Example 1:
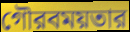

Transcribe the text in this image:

গৌরবময়তার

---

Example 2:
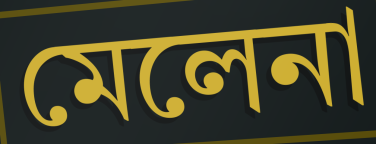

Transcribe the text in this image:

মেলেনা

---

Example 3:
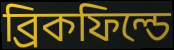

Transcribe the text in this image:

ব্রিকফিল্ডে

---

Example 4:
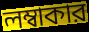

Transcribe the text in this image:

লম্বাকার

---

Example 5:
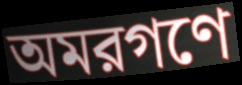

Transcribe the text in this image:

অমরগণে